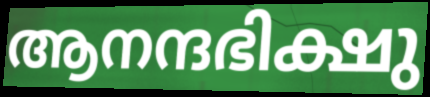
ആനന്ദഭിക്ഷു